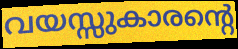
വയസ്സുകാരന്റെ